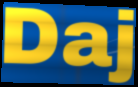
Daj